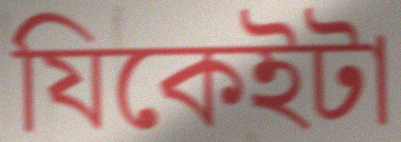
যিকেইটা